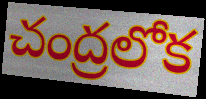
చంద్రలోక